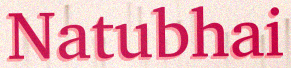
Natubhai